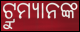
ଟ୍ରୁମ୍ୟାନଙ୍କ